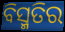
ବିସ୍ମତିର